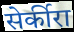
सेर्कीरा